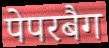
पेपरबैग